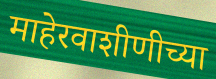
माहेरवाशीणीच्या